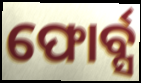
ଫୋର୍ବ୍ସ